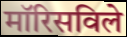
मॉरिसविले